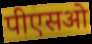
पीएसओ